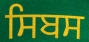
ਸਿਬਸ